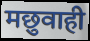
मछुवाही